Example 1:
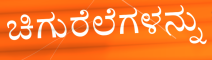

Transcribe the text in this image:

ಚಿಗುರೆಲೆಗಳನ್ನು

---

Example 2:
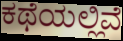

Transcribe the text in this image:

ಕಥೆಯಲ್ಲಿವೆ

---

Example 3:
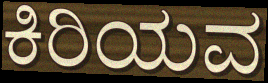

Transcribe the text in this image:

ಕಿರಿಯವ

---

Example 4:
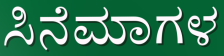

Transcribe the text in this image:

ಸಿನೆಮಾಗಳ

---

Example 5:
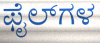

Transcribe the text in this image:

ಫೈಲ್‌ಗಳ